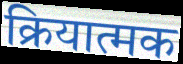
क्रियात्मक